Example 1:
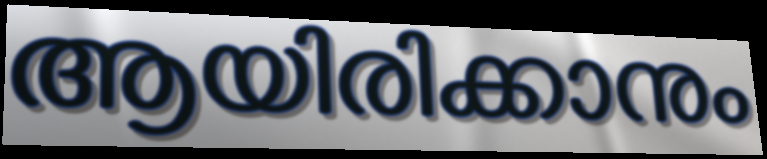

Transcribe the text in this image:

ആയിരിക്കാനും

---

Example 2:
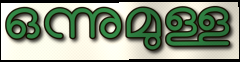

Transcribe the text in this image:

ഒന്നുമുള്ള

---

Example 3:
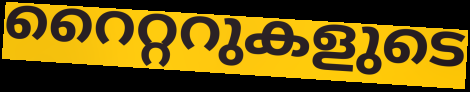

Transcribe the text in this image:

റൈറ്ററുകളുടെ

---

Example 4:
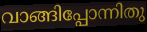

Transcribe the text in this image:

വാങ്ങിപ്പോന്നിതു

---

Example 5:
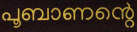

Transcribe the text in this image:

പൂബാണന്റെ